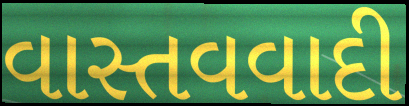
વાસ્તવવાદી